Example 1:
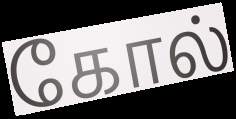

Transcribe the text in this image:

கோல்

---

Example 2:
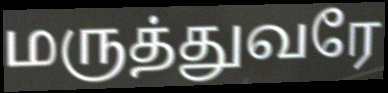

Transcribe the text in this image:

மருத்துவரே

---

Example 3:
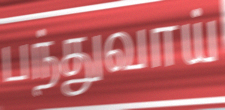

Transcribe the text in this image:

பந்துவாய்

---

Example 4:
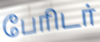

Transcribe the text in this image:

பேரிடர்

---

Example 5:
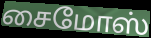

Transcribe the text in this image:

சைமோஸ்